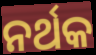
ନର୍ଥକ